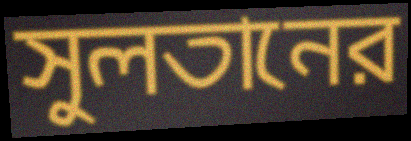
সুলতানের